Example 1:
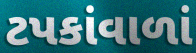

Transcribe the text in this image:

ટપકાંવાળાં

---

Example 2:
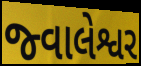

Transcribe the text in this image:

જ્વાલેશ્વર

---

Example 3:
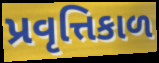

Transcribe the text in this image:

પ્રવૃત્તિકાળ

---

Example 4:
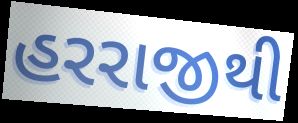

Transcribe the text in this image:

હરરાજીથી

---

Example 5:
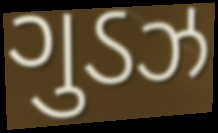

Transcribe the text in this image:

ગુડઝ